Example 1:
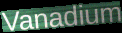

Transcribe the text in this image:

Vanadium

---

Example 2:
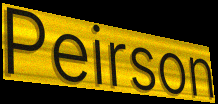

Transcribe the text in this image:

Peirson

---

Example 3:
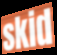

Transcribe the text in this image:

skid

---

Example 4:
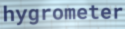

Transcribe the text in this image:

hygrometer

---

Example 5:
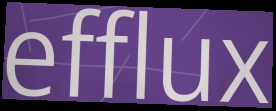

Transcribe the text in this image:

efflux